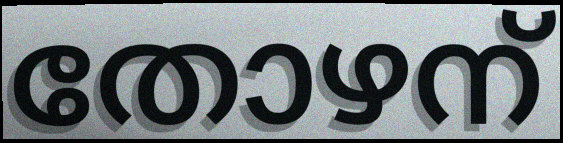
തോഴന്